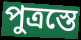
পুত্রস্তে